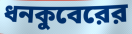
ধনকুবেরের